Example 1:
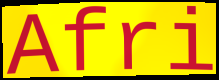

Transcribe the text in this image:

Afri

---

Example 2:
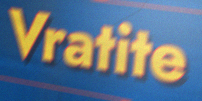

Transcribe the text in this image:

Vratite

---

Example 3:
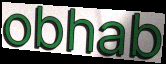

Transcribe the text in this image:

obhab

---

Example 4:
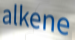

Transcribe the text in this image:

alkene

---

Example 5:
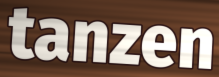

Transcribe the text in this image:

tanzen